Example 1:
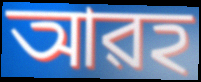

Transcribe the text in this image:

আৱহ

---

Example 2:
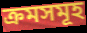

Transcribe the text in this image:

ক্ৰমসমূহ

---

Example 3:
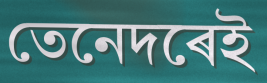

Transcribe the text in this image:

তেনেদৰেই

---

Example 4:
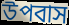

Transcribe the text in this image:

উপবাস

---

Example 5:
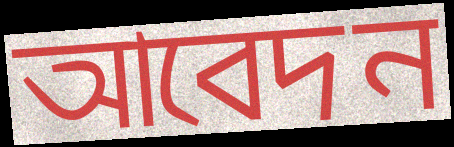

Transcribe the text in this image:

আবেদন